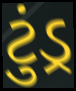
ટુંડ્ર